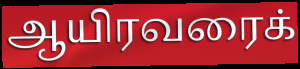
ஆயிரவரைக்